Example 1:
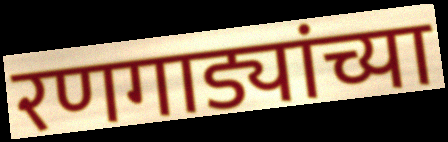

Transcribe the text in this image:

रणगाड्यांच्या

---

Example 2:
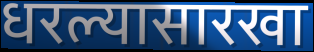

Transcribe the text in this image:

धरल्यासारखा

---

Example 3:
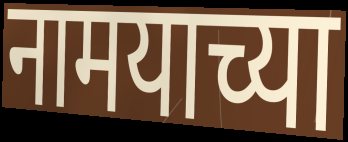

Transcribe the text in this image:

नामयाच्या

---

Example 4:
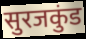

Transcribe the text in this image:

सुरजकुंड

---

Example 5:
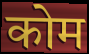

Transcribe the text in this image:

कोम